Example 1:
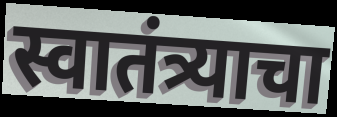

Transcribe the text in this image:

स्वातंत्र्याचा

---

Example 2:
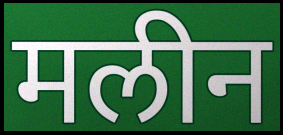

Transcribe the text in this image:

मलीन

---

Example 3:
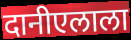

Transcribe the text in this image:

दानीएलाला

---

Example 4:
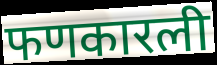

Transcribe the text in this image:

फणकारली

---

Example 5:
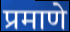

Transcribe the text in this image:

प्रमाणे